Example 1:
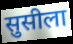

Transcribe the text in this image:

सुसीला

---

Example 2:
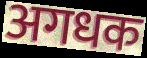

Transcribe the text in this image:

अगधक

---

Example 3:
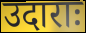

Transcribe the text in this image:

उदाराः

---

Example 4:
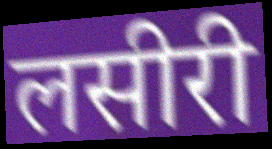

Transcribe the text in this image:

लसीरी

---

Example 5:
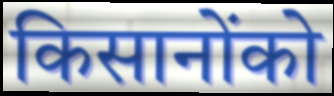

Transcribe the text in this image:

किसानोंको